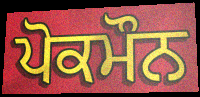
ਪੋਕਮੌਨ